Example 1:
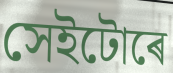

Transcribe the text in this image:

সেইটোৰে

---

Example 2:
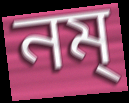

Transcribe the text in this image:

নম্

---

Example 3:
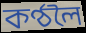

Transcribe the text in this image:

কণ্ঠলৈ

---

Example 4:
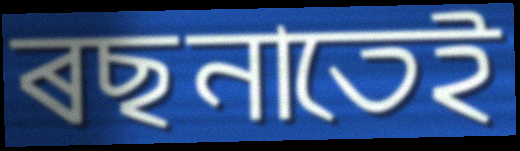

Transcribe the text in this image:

ৰছনাতেই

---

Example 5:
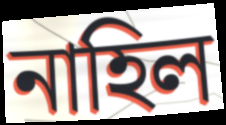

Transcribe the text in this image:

নাহিল